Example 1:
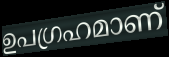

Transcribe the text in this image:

ഉപഗ്രഹമാണ്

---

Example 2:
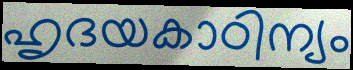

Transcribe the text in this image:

ഹൃദയകാഠിന്യം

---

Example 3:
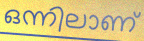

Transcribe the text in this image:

ഒന്നിലാണ്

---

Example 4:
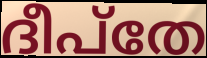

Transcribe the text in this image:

ദീപ്തേ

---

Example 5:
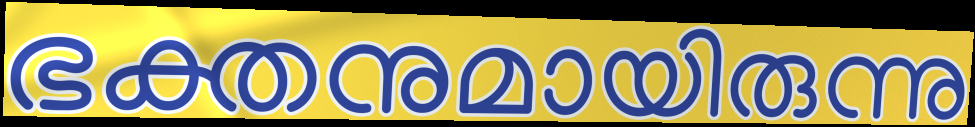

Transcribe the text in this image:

ഭക്തനുമായിരുന്നു